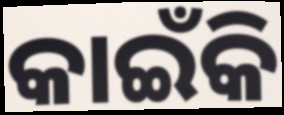
କାଇଁକି